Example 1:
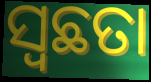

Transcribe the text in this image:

ସ୍ବଛତା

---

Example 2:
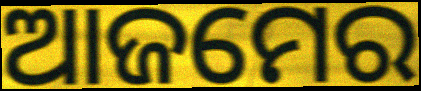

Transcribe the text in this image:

ଆଜମେର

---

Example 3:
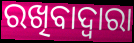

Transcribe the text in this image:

ରଖିବାଦ୍ୱାରା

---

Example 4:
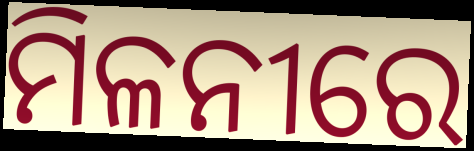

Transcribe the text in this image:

ମିଳନୀରେ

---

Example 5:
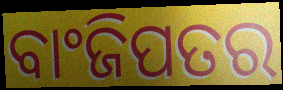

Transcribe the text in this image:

ବାଂଜିପତର